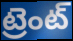
ట్రెంట్